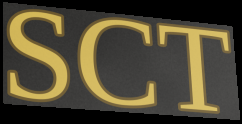
SCT